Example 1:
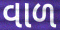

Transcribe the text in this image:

વાળ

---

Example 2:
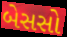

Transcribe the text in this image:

બેસસો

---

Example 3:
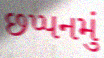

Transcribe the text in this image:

છપ્પનમું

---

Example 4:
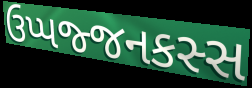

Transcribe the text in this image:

ઉપ્પજ્જનકસ્સ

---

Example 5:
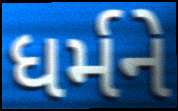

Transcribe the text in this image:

ધર્મને